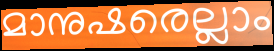
മാനുഷരെല്ലാം